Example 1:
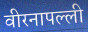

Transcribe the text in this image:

वीरनापल्ली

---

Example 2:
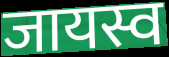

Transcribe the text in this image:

जायस्व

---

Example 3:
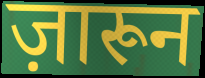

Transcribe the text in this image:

ज़ारून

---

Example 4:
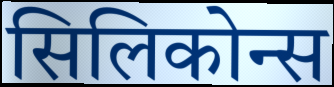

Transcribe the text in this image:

सिलिकोन्स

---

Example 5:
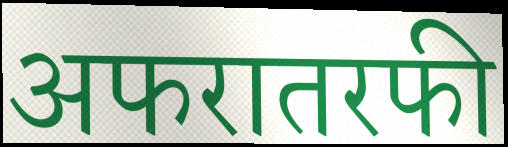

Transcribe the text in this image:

अफरातरफी